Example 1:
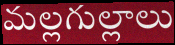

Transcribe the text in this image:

మల్లగుల్లాలు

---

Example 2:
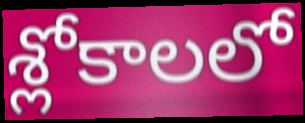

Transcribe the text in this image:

శ్లోకాలలో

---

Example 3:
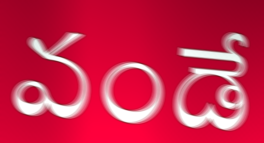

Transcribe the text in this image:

వండే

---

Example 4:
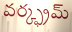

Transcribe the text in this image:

వర్క్ఫ్రమ్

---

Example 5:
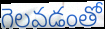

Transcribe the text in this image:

గెలవడంతో